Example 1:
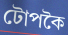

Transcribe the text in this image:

টোপকৈ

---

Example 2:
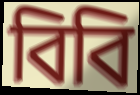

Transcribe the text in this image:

বিবি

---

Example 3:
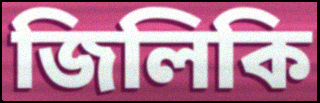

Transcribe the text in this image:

জিলিকি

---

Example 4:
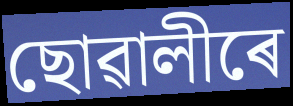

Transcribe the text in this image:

ছোৱালীৰে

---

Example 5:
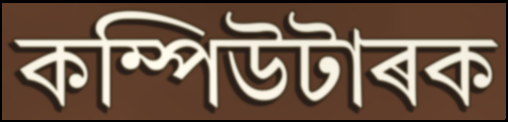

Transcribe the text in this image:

কম্পিউটাৰক